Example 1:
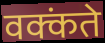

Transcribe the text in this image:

वक्कंते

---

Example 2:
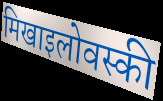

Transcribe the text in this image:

मिखाइलोवस्की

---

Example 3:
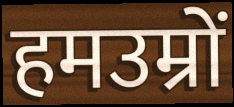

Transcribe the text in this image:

हमउम्रों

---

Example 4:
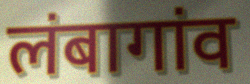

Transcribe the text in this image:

लंबागांव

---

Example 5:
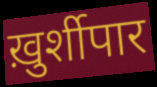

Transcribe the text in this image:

ख़ुर्शीपार